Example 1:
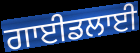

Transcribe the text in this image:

ਗਾਈਡਲਾਈ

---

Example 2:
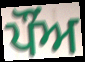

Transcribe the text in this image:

ਪੌਂਅ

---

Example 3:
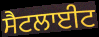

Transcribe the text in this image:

ਸੈਟਲਾਈਟ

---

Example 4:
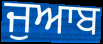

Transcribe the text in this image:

ਜੁਆਬ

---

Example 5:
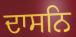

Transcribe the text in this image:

ਦਾਸਨਿ